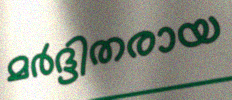
മർദ്ദിതരായ